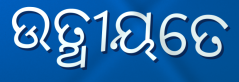
ଉତ୍ଥୀୟତେ